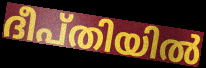
ദീപ്തിയിൽ